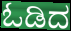
ಓಡಿದ